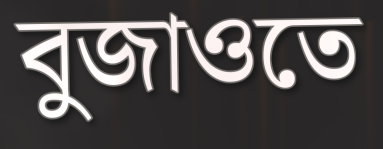
বুজাওতে